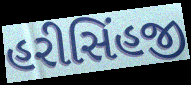
હરીસિંહજી